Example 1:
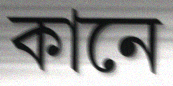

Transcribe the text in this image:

কানে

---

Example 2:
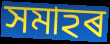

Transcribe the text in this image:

সমাহৰ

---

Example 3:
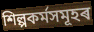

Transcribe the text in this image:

শিল্পকৰ্মসমূহৰ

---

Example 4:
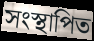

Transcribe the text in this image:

সংস্থাপিত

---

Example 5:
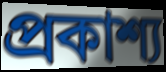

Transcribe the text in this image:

প্ৰকাশ্য